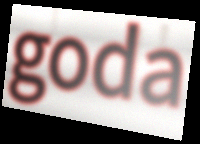
goda